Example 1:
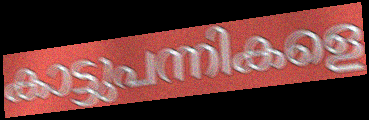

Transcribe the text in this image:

കാട്ടുപന്നികളെ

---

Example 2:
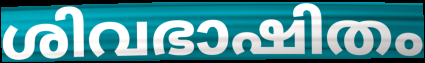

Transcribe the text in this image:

ശിവഭാഷിതം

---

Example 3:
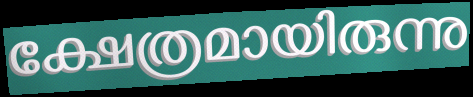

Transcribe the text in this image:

ക്ഷേത്രമായിരുന്നു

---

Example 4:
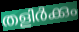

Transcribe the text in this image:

തളിർക്കും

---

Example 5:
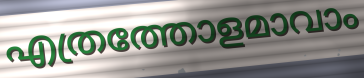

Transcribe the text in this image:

എത്രത്തോളമാവാം